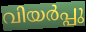
വിയർപ്പു